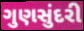
ગુણસુંદરી